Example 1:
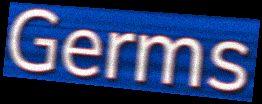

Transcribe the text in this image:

Germs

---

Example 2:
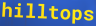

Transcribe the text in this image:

hilltops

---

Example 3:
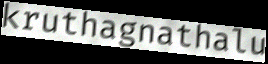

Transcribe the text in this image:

kruthagnathalu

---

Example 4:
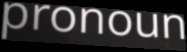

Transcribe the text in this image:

pronoun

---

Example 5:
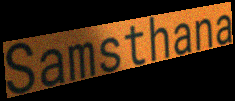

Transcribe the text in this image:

Samsthana